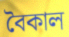
বৈকাল